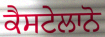
ਕੈਸਟੇਲਾਨੋ